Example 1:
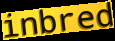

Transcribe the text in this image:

inbred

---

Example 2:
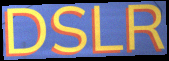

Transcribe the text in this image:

DSLR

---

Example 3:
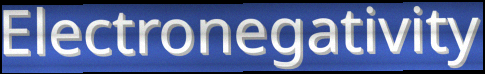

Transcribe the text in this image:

Electronegativity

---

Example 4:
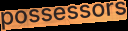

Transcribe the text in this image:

possessors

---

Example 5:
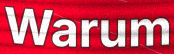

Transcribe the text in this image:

Warum